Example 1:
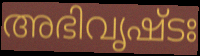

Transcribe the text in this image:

അഭിവൃഷ്ടഃ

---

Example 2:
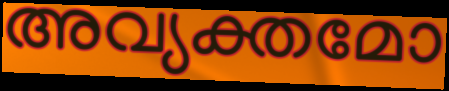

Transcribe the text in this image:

അവ്യക്തമോ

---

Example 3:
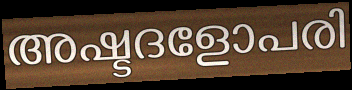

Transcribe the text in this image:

അഷ്ടദളോപരി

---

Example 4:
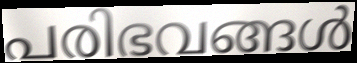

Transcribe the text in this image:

പരിഭവങ്ങൾ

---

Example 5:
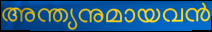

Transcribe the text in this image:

അന്ത്യനുമായവൻ